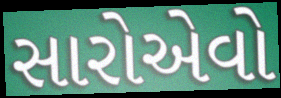
સારોએવો